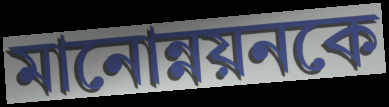
মানোন্নয়নকে